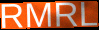
RMRL